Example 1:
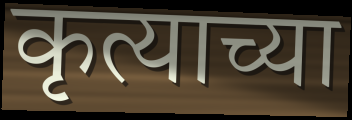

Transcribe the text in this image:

कृत्याच्या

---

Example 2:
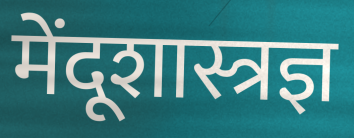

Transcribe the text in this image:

मेंदूशास्त्रज्ञ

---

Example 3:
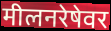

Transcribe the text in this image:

मीलनरेषेवर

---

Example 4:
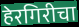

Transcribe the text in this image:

हेरगिरीचा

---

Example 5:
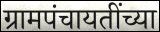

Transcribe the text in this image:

ग्रामपंचायतींच्या